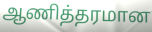
ஆணித்தரமான